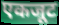
एकजूट